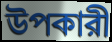
উপকারী